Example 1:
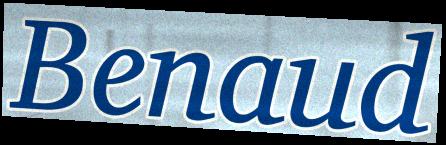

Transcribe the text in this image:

Benaud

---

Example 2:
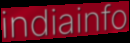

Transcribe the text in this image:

indiainfo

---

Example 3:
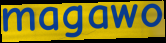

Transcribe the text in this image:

magawo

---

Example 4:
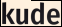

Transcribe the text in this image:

kude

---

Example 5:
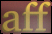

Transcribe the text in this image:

aff